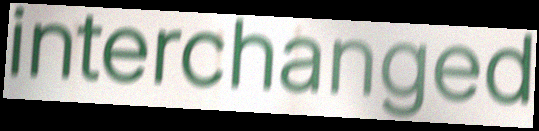
interchanged